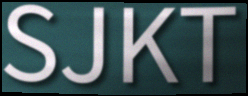
SJKT